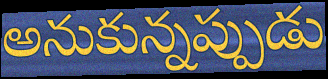
అనుకున్నప్పుడు